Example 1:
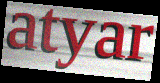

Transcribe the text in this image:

atyar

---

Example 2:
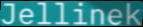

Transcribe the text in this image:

Jellinek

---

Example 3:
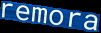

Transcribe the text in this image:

remora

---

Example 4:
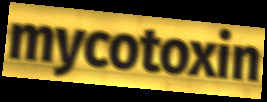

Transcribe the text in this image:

mycotoxin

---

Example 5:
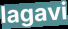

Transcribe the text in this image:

lagavi